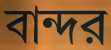
বান্দর